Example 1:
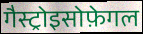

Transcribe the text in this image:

गैस्ट्रोइसोफ़ेगल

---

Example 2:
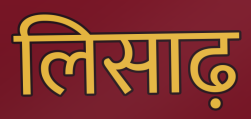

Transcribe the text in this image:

लिसाढ़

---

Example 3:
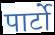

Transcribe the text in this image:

पार्टो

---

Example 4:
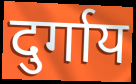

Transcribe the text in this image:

दुर्गाय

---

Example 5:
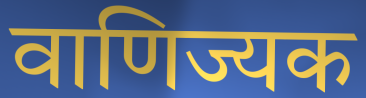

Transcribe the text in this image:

वाणिज्यक